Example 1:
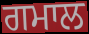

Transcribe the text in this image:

ਗਮਾਲ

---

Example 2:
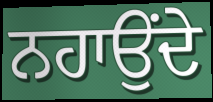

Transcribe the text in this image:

ਨਹਾਉਂਦੇ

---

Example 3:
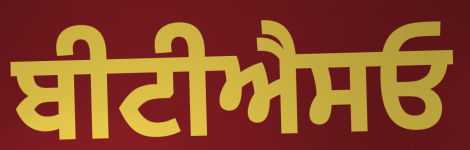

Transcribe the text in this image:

ਬੀਟੀਐਸਓ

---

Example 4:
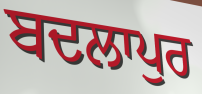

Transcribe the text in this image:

ਬਦਲਾਪੁਰ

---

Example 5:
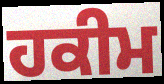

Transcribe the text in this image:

ਹਕੀਮ